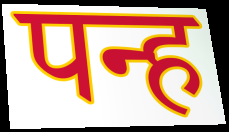
पन्ह